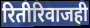
रितीरिवाजही